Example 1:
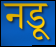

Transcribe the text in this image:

नडू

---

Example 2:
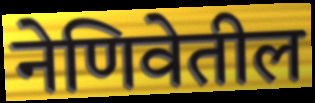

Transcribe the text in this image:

नेणिवेतील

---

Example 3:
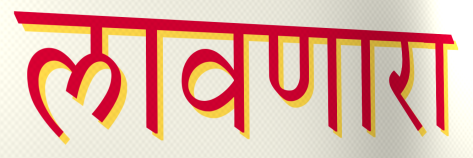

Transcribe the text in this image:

लावणारा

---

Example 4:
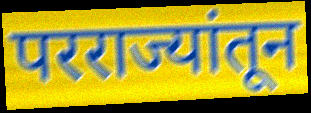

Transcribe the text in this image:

परराज्यांतून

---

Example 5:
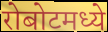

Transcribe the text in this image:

रोबोटमध्ये